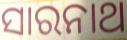
ସାରନାଥ